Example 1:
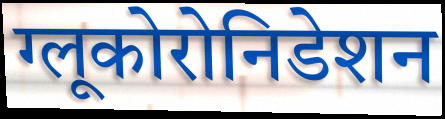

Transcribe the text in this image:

ग्लूकोरोनिडेशन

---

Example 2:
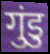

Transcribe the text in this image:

गुंडु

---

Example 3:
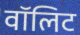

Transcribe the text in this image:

वॉलिट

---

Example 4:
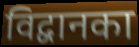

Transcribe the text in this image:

विद्वानका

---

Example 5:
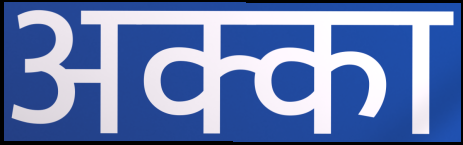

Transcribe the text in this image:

अक्का